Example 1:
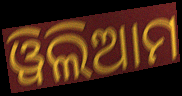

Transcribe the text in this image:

ୱିଲିଆମ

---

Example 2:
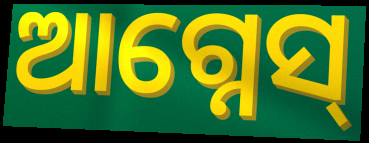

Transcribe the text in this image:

ଆଗ୍ନେସ୍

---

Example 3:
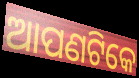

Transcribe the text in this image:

ଆପଣଟିକେ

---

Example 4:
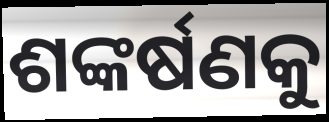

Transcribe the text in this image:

ଶଙ୍କର୍ଷଣକୁ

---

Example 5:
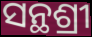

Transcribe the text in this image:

ସନ୍ଥଶ୍ରୀ